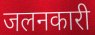
जलनकारी